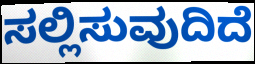
ಸಲ್ಲಿಸುವುದಿದೆ